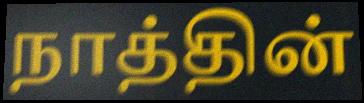
நாத்தின்